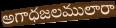
అగాధజలములారా